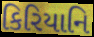
કિરિયાનિ